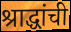
श्राद्धांची